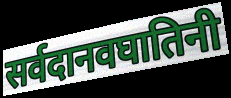
सर्वदानवघातिनी